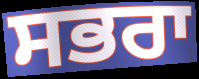
ਸਭਰਾ